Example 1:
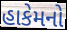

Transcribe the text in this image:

હાકેમનો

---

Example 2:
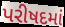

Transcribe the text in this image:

પરીષદમાં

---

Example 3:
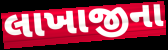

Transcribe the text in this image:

લાખાજીના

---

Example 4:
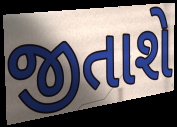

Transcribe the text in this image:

જીતાશે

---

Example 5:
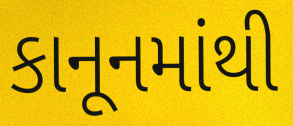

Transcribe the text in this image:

કાનૂનમાંથી